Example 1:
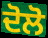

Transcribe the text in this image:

ਦੋਲੋ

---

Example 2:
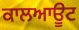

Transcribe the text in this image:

ਕਾਲਆਊਟ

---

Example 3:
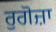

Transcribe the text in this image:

ਰੁਗੋਜ਼ਾ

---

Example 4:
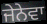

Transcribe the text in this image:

ਜੇਨੇਵਾ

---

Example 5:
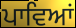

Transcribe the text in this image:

ਪਾਵਿਆਂ